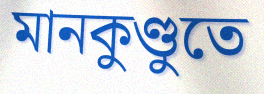
মানকুণ্ডুতে